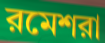
রমেশরা